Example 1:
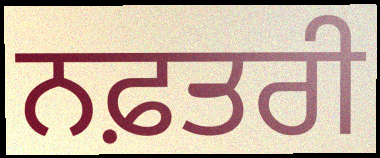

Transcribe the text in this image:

ਨਫ਼ਤਰੀ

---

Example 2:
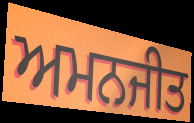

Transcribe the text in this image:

ਅਮਨਜੀਤ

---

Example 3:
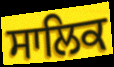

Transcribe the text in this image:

ਸਾਲਿਕ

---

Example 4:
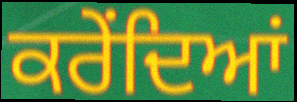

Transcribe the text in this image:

ਕਰੇਂਦਿਆਂ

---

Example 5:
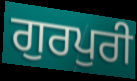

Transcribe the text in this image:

ਗੁਰਪੁਰੀ